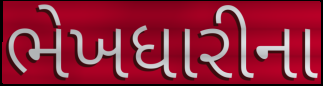
ભેખધારીના